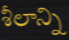
శీలాన్ని